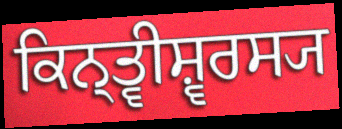
ਕਿਨ੍ਤ੍ਵੀਸ਼੍ਵਰਸ੍ਯ